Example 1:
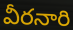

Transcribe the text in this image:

వీరనారి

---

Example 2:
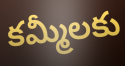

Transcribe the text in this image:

కమ్మీలకు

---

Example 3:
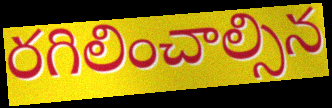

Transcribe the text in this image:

రగిలించాల్సిన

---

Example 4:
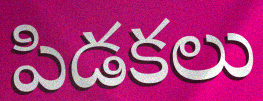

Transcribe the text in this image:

పిడకలు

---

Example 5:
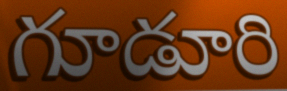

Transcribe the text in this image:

గూడూరి